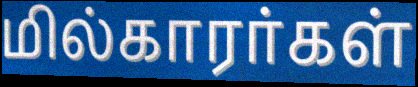
மில்காரர்கள்